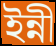
ইন্নী